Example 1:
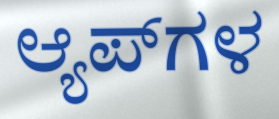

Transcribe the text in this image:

ಆ್ಯಪ್‌ಗಳ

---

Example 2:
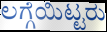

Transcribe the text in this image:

ಲಗ್ಗೆಯಿಟ್ಟರು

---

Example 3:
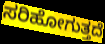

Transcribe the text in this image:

ಸರಿಹೋಗುತ್ತದೆ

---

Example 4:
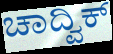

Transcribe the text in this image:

ಚಾದ್ವಿಕ್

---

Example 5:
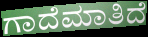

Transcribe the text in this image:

ಗಾದೆಮಾತಿದೆ